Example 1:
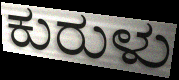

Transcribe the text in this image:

ಕುರುಳು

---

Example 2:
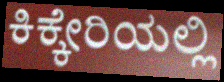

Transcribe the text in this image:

ಕಿಕ್ಕೇರಿಯಲ್ಲಿ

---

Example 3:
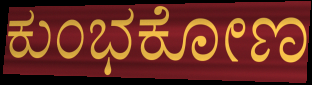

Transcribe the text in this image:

ಕುಂಭಕೋಣ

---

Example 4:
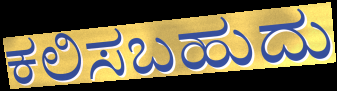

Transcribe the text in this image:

ಕಲಿಸಬಹುದು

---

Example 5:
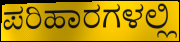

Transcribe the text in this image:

ಪರಿಹಾರಗಳಲ್ಲಿ